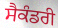
ਸੈਕੰਡਰੀ